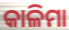
କାଳିମା